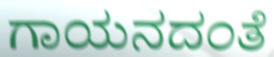
ಗಾಯನದಂತೆ